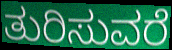
ತುರಿಸುವರೆ